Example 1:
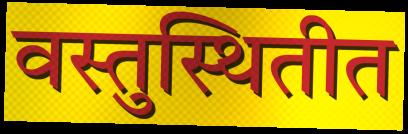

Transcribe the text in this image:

वस्तुस्थितीत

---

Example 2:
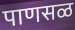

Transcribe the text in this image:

पाणसळ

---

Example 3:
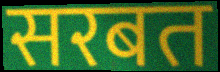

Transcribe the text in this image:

सरबत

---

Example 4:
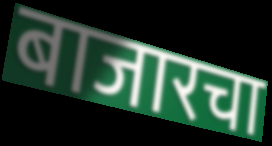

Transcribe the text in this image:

बाजारचा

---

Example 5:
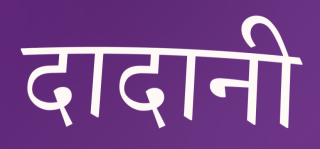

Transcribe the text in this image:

दादानी